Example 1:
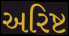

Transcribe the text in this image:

અરિષ્ટ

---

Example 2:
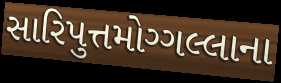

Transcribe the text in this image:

સારિપુત્તમોગ્ગલ્લાના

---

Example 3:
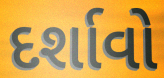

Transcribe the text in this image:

દર્શાવો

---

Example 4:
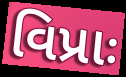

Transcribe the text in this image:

વિપ્રાઃ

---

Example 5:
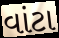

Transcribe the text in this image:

વાંટા